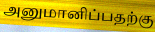
அனுமானிப்பதற்கு